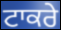
ਟਾਕਰੇ